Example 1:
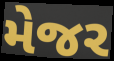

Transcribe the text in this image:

મેજર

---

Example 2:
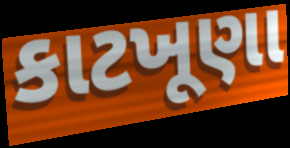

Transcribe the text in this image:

કાટખૂણા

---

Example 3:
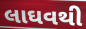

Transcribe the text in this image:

લાઘવથી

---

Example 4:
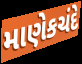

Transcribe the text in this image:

માણેકચંદે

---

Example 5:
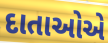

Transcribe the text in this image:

દાતાઓએ